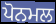
ਪੋਨਮਲ